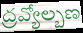
ద్రవ్యోల్బణ